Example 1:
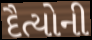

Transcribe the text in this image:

દૈત્યોની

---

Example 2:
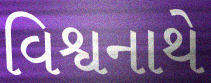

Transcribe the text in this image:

વિશ્વનાથે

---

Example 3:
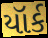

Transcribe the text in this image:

યૉર્ક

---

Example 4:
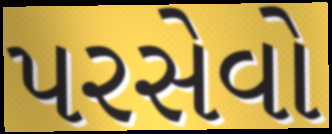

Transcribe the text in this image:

પરસેવો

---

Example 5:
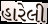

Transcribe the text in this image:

હારેલી